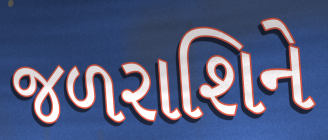
જળરાશિને